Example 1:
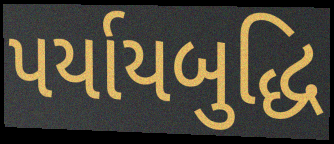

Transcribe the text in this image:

પર્યાયબુદ્ધિ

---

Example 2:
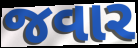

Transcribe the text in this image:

જવાર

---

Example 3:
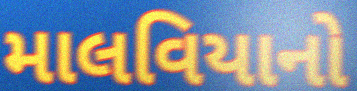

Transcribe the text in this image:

માલવિયાનો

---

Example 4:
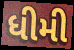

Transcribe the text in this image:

ધીમી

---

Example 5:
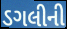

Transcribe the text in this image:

ડગલીની